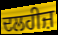
ਦਲਹੀਜ਼